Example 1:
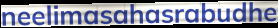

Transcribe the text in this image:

neelimasahasrabudhe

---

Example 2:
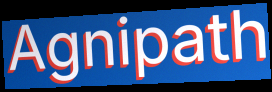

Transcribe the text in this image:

Agnipath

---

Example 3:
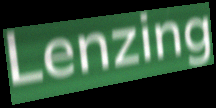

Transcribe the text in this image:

Lenzing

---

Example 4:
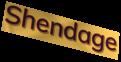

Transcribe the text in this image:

Shendage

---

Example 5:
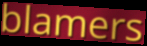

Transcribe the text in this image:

blamers